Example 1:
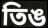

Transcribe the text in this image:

তিঙ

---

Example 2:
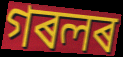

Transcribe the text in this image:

গৰলৰ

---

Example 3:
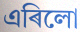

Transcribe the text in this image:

এৰিলো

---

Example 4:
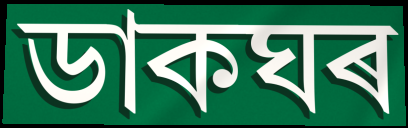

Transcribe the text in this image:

ডাকঘৰ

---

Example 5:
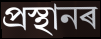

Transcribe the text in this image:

প্ৰস্থানৰ